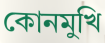
কোনমুখি